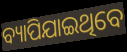
ବ୍ୟାପିଯାଇଥିବେ